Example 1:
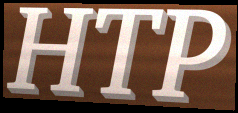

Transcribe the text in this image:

HTP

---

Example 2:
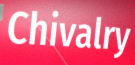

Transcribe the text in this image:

Chivalry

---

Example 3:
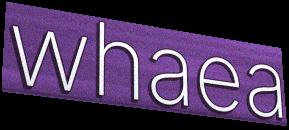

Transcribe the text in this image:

whaea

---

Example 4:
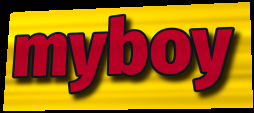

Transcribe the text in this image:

myboy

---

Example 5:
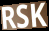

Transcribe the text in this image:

RSK